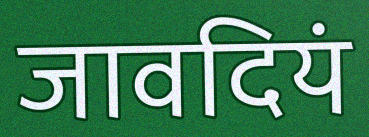
जावदियं